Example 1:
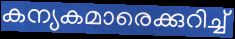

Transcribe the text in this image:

കന്യകമാരെക്കുറിച്ച്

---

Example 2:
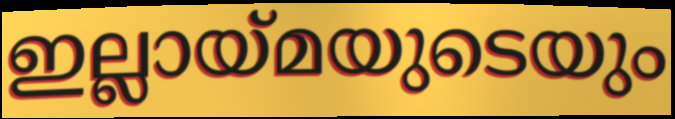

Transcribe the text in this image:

ഇല്ലായ്മയുടെയും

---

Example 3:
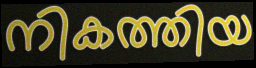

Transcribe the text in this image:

നികത്തിയ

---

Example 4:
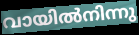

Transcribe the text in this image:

വായിൽനിന്നു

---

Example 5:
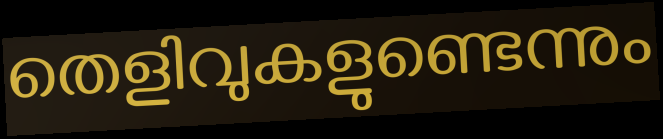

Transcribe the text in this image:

തെളിവുകളുണ്ടെന്നും